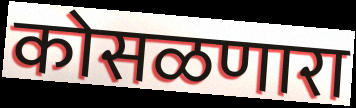
कोसळणारा